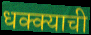
धक्क्याची